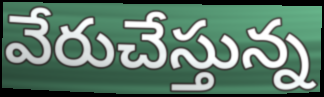
వేరుచేస్తున్న